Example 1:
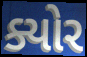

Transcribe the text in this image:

ક્યોર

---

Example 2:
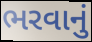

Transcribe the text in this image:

ભરવાનું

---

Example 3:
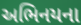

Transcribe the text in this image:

અભિનયના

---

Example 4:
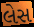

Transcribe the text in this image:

લેસ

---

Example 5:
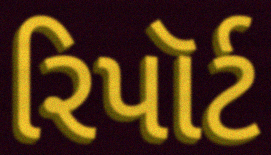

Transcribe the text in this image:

રિપૉર્ટ